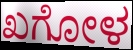
ಖಗೋಳ